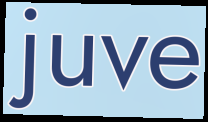
juve